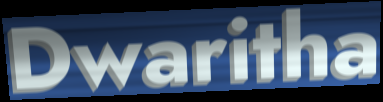
Dwaritha